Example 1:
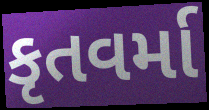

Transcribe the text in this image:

કૃતવર્મા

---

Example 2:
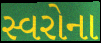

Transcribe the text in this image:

સ્વરોના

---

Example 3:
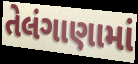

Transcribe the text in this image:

તેલંગાણામાં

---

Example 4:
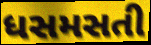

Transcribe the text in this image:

ધસમસતી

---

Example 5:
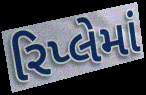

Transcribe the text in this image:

રિપ્લેમાં